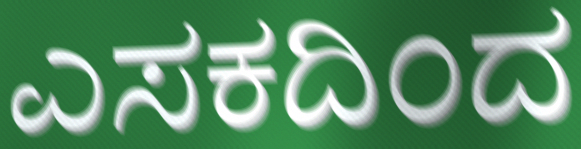
ಎಸಕದಿಂದ